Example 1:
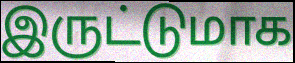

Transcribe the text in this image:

இருட்டுமாக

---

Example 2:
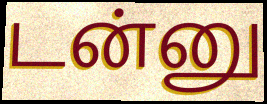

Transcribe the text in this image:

டன்னு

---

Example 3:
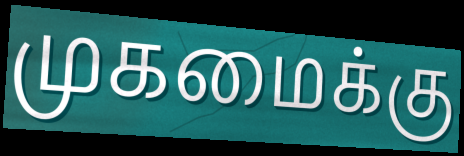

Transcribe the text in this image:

முகமைக்கு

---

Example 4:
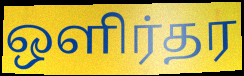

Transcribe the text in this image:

ஒளிர்தர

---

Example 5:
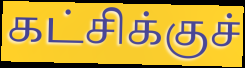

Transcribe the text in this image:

கட்சிக்குச்